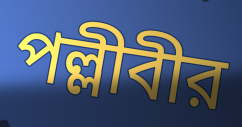
পল্লীবীর